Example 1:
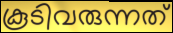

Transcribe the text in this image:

കൂടിവരുന്നത്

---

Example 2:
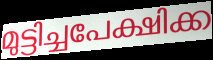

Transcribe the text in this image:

മുട്ടിച്ചപേക്ഷിക്ക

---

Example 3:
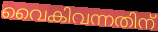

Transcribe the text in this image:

വൈകിവന്നതിന്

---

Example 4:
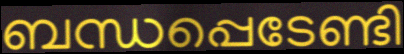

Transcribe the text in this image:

ബന്ധപ്പെടേണ്ടി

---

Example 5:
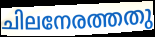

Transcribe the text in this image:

ചിലനേരത്തതു